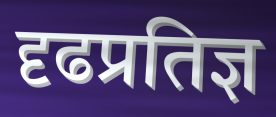
दृढप्रतिज्ञ